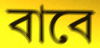
বাবে